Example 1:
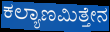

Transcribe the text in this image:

ಕಲ್ಯಾಣಮಿತ್ತೇನ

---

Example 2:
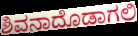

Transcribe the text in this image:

ಶಿವನಾದೊಡಾಗಲಿ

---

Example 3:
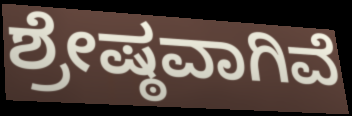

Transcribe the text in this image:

ಶ್ರೇಷ್ಠವಾಗಿವೆ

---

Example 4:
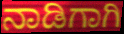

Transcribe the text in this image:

ನಾಡಿಗಾಗಿ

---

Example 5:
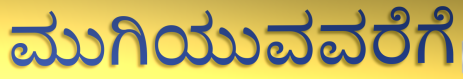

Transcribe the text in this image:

ಮುಗಿಯುವವರೆಗೆ